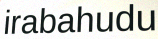
irabahudu